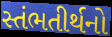
સ્તંભતીર્થનો